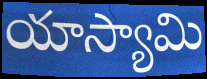
యాస్యామి